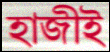
হাজীই